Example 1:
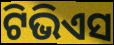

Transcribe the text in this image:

ଟିଭିଏସ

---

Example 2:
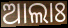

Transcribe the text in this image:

ଆଲାଃ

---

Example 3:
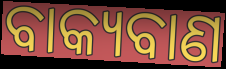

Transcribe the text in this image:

ବାକ୍ୟବାଣ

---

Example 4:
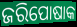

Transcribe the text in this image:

ଜରିପୋଷାକ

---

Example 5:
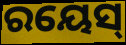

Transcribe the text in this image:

ରୟେସ୍